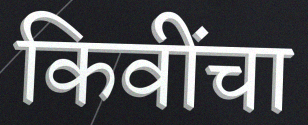
किवींचा